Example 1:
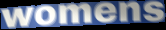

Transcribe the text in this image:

womens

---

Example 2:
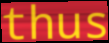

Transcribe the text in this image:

thus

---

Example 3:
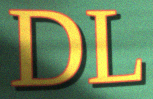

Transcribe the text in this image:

DL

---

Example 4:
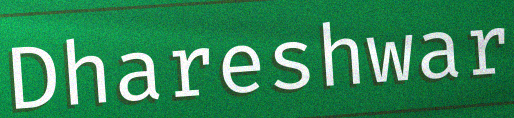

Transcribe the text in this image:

Dhareshwar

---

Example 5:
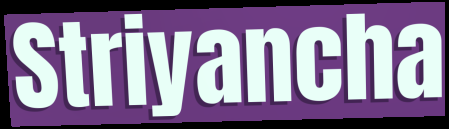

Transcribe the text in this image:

Striyancha